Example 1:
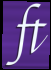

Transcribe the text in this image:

ft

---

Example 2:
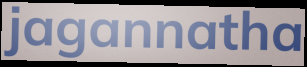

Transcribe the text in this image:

jagannatha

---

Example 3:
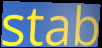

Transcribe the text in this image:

stab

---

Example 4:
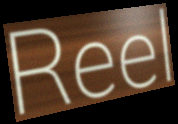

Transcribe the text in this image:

Reel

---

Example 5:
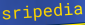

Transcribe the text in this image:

sripedia